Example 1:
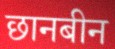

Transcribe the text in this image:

छानबीन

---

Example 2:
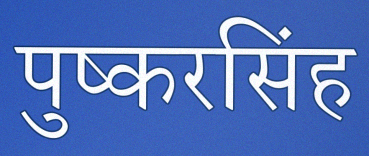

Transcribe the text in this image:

पुष्करसिंह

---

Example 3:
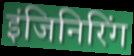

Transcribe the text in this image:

इंजिनिरिंग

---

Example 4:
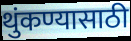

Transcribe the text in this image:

थुंकण्यासाठी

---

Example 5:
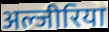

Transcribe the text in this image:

अल्जीरिया